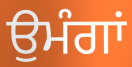
ਉਮੰਗਾਂ